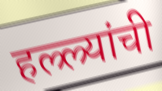
हल्ल्यांची